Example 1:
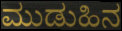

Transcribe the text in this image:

ಮುಡುಹಿನ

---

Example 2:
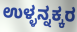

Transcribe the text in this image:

ಉಳ್ಳನ್ನಕ್ಕರ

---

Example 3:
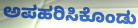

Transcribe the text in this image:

ಅಪಹರಿಸಿಕೊಂಡು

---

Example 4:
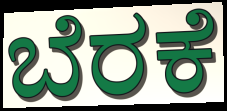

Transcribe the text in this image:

ಬೆರಕೆ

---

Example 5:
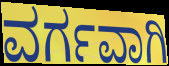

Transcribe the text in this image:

ವರ್ಗವಾಗಿ